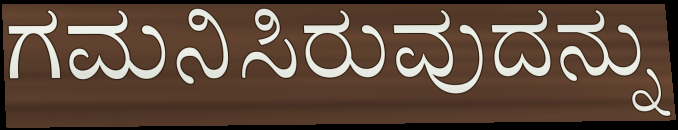
ಗಮನಿಸಿರುವುದನ್ನು